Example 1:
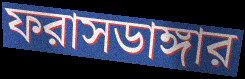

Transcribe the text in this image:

ফরাসডাঙ্গার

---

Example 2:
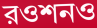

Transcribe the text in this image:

রওশনও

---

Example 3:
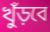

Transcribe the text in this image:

খুঁড়বে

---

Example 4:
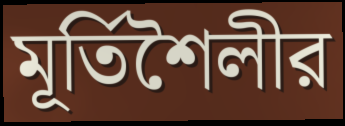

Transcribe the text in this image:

মূর্তিশৈলীর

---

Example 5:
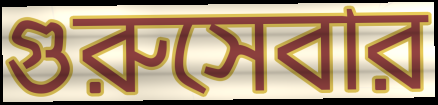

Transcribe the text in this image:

গুরুসেবার